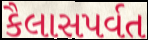
કૈલાસપર્વત